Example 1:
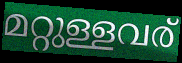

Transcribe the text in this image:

മറ്റുള്ളവര്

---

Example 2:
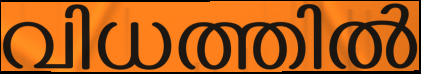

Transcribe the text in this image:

വിധത്തിൽ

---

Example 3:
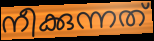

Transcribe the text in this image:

നീക്കുന്നത്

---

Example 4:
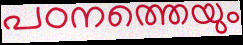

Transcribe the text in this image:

പഠനത്തെയും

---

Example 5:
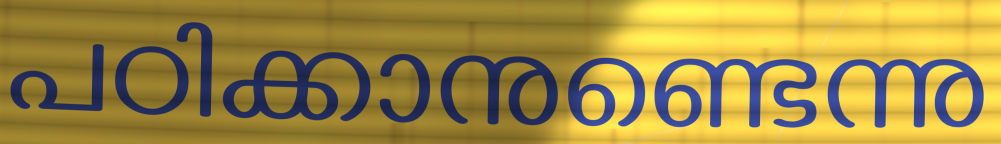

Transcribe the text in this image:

പഠിക്കാനുണ്ടെന്നു